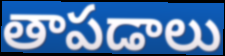
తాపడాలు